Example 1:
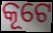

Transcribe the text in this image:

କୂଟେ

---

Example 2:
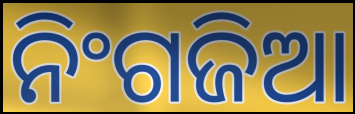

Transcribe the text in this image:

ନିଂଗଜିଆ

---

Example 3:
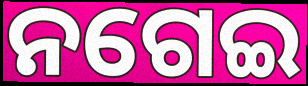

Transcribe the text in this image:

ନଗେଇ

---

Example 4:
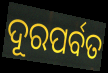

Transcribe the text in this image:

ଦୂରପର୍ବତ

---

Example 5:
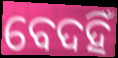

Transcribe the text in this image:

ବେଦହିଁ